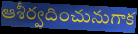
ఆశీర్వదించునుగాక